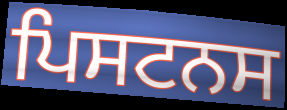
ਪਿਸਟਨਸ